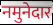
नमुनेदार